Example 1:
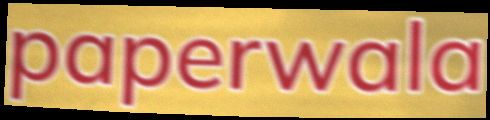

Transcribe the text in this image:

paperwala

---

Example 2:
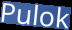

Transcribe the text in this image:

Pulok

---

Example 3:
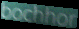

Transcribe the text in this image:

bochhor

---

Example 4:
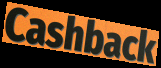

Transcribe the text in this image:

Cashback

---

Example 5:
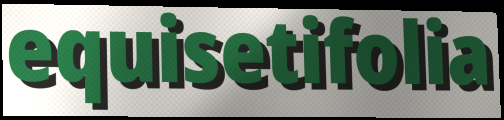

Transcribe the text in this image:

equisetifolia